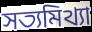
সত্যমিথ্যা